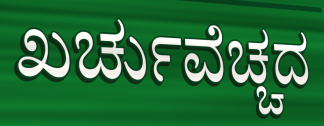
ಖರ್ಚುವೆಚ್ಚದ